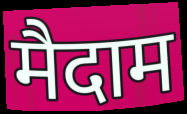
मैदाम